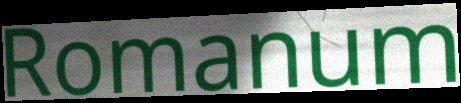
Romanum